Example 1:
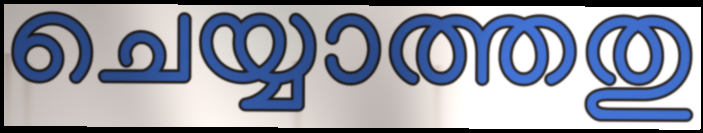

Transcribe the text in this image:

ചെയ്യാത്തതു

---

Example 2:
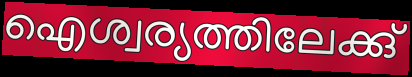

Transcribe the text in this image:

ഐശ്വര്യത്തിലേക്കു്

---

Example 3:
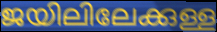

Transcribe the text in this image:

ജയിലിലേക്കുള്ള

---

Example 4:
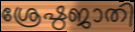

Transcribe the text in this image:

ശ്രേഷ്ഠജാതി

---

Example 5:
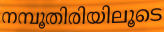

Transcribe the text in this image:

നമ്പൂതിരിയിലൂടെ